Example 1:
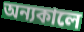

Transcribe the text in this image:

অন্যকালে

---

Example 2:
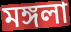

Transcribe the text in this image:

মঙ্গলা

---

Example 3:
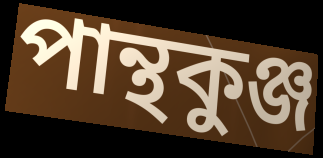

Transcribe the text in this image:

পান্থকুঞ্জ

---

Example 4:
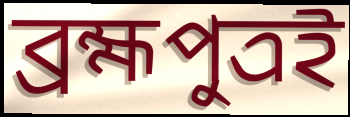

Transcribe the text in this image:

ব্রহ্মপুত্রই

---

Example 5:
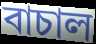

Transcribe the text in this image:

বাচাল